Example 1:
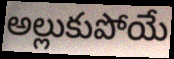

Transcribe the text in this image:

అల్లుకుపోయే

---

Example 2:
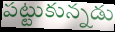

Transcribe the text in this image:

పట్టుకున్నడు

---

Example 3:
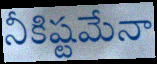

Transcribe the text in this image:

నీకిష్టమేనా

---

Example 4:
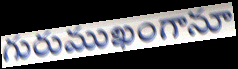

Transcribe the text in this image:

గురుముఖంగానూ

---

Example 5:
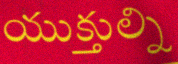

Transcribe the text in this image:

యుక్తుల్ని